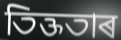
তিক্ততাৰ